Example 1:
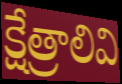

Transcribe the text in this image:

క్షేత్రాలివి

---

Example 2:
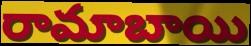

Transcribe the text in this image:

రామాబాయి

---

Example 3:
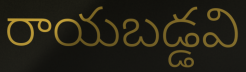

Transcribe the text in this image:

రాయబడ్డవి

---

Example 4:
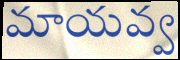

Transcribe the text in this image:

మాయవ్వ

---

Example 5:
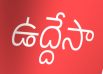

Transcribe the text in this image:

ఉద్దేసా